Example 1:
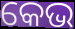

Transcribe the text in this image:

କେଭ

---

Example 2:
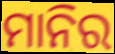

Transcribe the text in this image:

ମାନିର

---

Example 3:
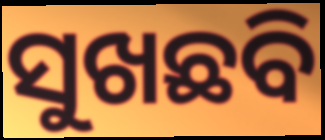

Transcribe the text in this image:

ସୁଖଛବି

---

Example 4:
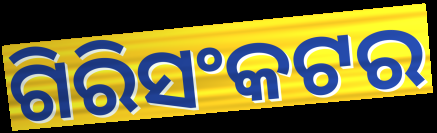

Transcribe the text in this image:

ଗିରିସଂକଟର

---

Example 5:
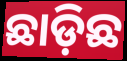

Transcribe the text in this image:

ଛାଡ଼ିଛ